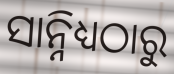
ସାନ୍ନିଧ୍ୟଠାରୁ